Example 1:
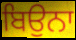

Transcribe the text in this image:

ਬਿਉਨਾ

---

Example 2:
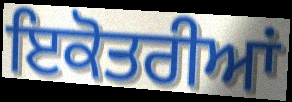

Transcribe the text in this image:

ਇਕੋਤਰੀਆਂ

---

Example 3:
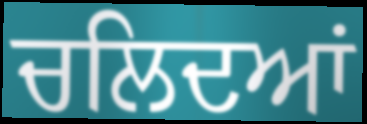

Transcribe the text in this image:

ਚਲਿਦਆਂ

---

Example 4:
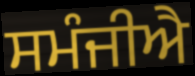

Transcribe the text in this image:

ਸਮੰਜੀਐ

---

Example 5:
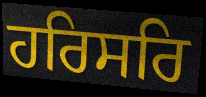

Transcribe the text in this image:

ਹਰਿਸਰਿ